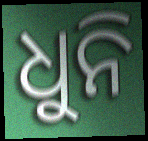
ଧୁନି